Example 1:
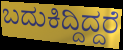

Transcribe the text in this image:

ಬದುಕಿದ್ದಿದ್ದರೆ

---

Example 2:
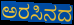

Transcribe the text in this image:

ಅರಸಿನದ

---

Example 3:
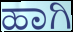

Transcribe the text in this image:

ಹಾಗಿ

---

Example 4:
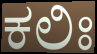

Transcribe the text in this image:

ಕಲಿಃ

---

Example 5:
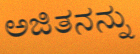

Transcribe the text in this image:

ಅಜಿತನನ್ನು